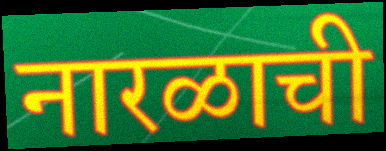
नारळाची